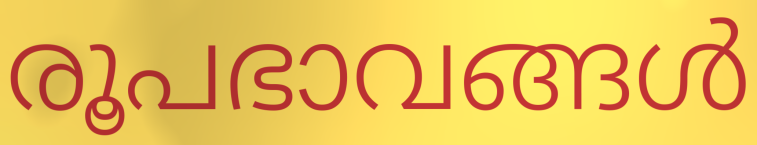
രൂപഭാവങ്ങൾ